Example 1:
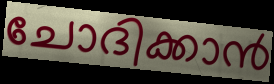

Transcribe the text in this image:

ചോദിക്കാൻ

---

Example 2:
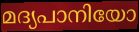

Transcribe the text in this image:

മദ്യപാനിയോ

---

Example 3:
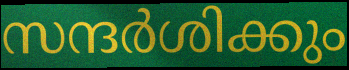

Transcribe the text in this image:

സന്ദർശിക്കും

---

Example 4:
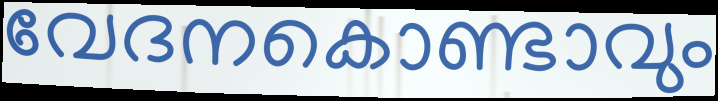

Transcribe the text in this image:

വേദനകൊണ്ടാവും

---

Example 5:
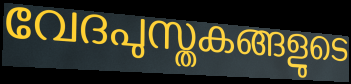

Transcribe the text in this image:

വേദപുസ്തകങ്ങളുടെ